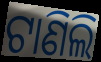
ଟାଣିଲି